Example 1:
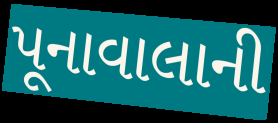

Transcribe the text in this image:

પૂનાવાલાની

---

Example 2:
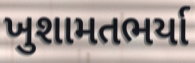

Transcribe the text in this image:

ખુશામતભર્યા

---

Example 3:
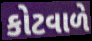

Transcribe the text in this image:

કોટવાળે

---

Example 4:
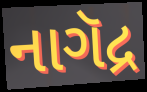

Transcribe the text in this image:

નાગૅદ્ર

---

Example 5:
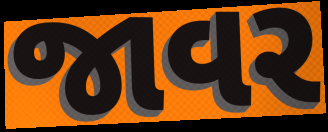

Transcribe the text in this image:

જાવર